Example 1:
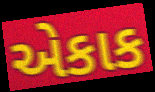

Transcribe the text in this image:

એકાક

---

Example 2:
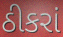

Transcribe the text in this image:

ઠીકરાં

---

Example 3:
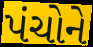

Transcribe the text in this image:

પંચોને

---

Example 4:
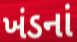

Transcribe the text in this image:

ખંડનાં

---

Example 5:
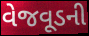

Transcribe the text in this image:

વેજવૂડની